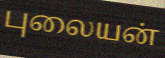
புலையன்